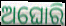
ଅଘୋରି